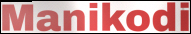
Manikodi